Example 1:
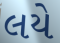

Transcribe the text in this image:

લયે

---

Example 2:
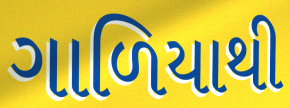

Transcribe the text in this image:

ગાળિયાથી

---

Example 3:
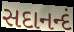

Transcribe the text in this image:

સદાનન્દં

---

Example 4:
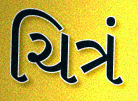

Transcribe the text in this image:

ચિત્રં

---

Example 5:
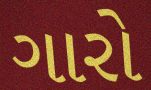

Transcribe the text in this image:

ગારો